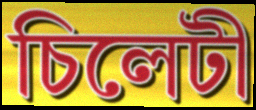
চিলেটী